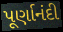
પૂર્ણાનંદી